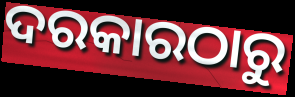
ଦରକାରଠାରୁ